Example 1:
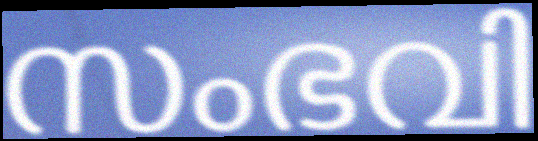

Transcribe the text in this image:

സംഭവി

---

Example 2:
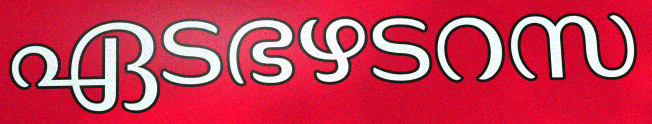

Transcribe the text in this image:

ഏടഭഴടറസ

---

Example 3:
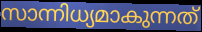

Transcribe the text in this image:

സാന്നിധ്യമാകുന്നത്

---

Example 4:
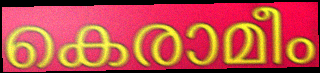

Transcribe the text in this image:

കെരാമീം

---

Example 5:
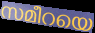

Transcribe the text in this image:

സമീറയെ